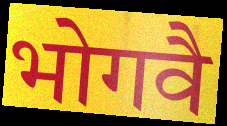
भोगवै